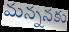
మన్ననకు